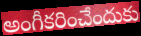
అంగీకరించేందుకు